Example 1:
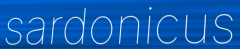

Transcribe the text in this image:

sardonicus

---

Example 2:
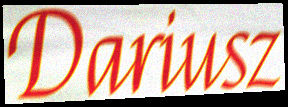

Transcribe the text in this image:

Dariusz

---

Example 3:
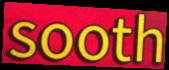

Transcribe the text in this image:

sooth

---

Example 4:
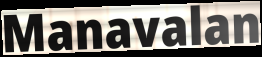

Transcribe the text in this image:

Manavalan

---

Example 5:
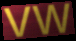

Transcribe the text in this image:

VW